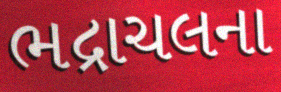
ભદ્રાચલના